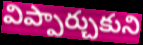
విప్పార్చుకుని